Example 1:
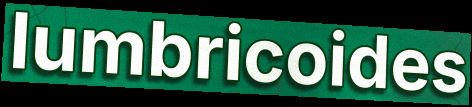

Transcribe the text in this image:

lumbricoides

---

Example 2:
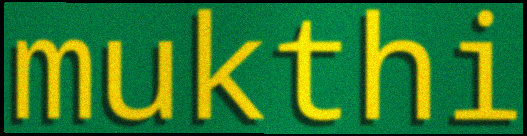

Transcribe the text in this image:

mukthi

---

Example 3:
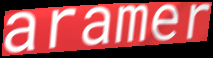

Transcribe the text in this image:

aramer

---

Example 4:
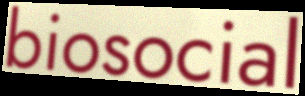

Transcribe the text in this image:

biosocial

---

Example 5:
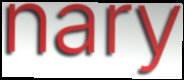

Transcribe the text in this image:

nary